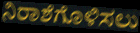
ನಿರಾಶೆಗೊಳಿಸಲು